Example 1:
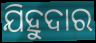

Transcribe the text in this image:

ଯିହୁଦାର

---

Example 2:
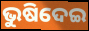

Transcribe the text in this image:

ଭୁଷିଦେଇ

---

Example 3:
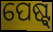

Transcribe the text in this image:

ପେଷ୍ଟ୍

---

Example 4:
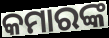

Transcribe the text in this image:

କମାରଙ୍କ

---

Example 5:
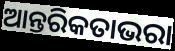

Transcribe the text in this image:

ଆନ୍ତରିକତାଭରା